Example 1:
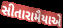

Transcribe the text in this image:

સીતારામૈયાએ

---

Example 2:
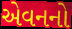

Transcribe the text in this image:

એવનનો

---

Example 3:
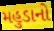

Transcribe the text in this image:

મહુડાનો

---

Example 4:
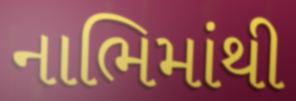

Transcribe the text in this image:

નાભિમાંથી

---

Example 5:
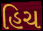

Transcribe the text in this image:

હિચ